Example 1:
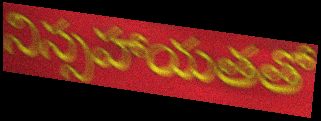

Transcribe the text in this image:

నిస్సహాయతతో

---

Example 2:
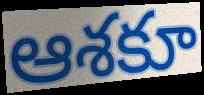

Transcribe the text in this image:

ఆశకూ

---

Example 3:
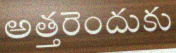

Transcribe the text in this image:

అత్తరెందుకు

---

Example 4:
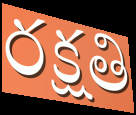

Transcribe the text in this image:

రక్షతి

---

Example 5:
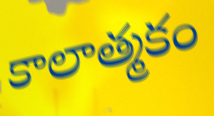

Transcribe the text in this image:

కాలాత్మకం